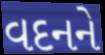
વદનને